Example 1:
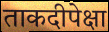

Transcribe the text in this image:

ताकदीपेक्षा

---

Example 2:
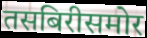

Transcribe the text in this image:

तसबिरीसमोर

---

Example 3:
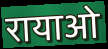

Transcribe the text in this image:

रायाओ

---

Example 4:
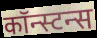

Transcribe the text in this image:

कॉन्स्टन्स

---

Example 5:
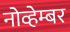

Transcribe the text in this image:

नोव्हेम्बर